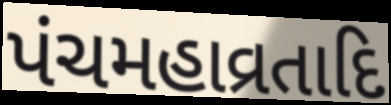
પંચમહાવ્રતાદિ